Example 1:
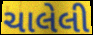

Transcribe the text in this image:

ચાલેલી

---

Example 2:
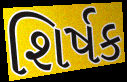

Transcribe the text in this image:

શિર્ષક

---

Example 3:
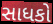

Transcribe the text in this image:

સાધકો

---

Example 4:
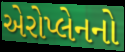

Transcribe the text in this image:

એરોપ્લેનનો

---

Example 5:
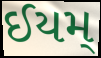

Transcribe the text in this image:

ઈયમ્